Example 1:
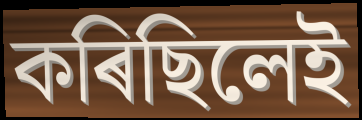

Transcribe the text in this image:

কৰিছিলেই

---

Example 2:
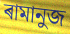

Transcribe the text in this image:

ৰামানুজ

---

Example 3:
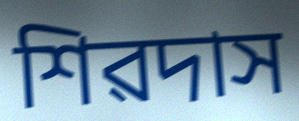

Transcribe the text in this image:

শিৱদাস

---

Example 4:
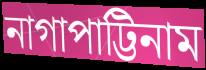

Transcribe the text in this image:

নাগাপাট্টিনাম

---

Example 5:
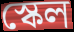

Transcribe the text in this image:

স্কেল